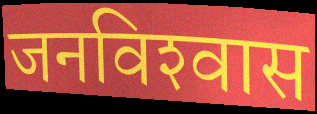
जनविश्वास